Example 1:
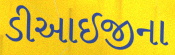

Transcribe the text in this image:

ડીઆઈજીના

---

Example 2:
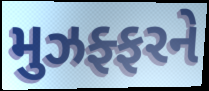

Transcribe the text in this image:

મુઝફ્ફરને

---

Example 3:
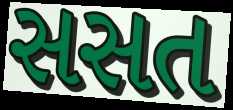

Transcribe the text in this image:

સસત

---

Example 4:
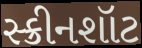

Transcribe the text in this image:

સ્ક્રીનશૉટ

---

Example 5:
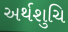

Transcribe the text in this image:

અર્થશુચિ